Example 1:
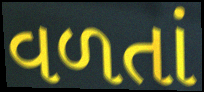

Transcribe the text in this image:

વળતાં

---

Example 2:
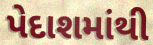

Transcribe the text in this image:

પેદાશમાંથી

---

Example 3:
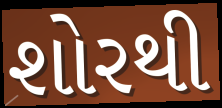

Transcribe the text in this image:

શોરથી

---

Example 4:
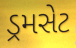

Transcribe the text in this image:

ડ્રમસેટ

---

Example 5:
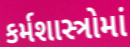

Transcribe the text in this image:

કર્મશાસ્ત્રોમાં